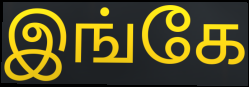
இங்கே